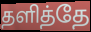
தளித்தே